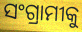
ସଂଗ୍ରାମୀକୁ